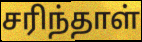
சரிந்தாள்